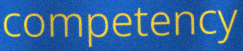
competency